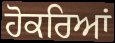
ਹੋਕਰਿਆਂ